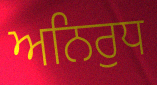
ਅਨਿਰੁਧ